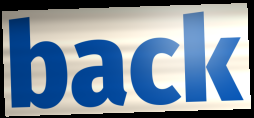
back